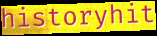
historyhit